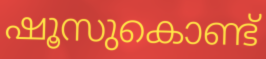
ഷൂസുകൊണ്ട്